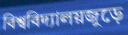
বিশ্ববিদ্যালয়জুড়ে